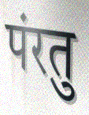
पंरतु